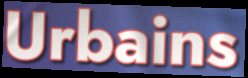
Urbains